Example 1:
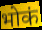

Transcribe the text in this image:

भोकं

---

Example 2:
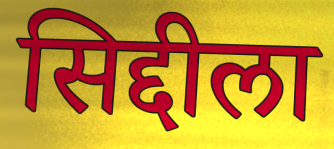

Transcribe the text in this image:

सिद्दीला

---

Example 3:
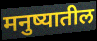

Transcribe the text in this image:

मनुष्यातील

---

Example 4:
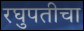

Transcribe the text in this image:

रघुपतीचा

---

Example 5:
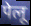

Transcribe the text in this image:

पेलू